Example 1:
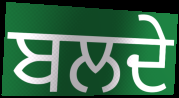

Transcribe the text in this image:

ਬਲਦੇ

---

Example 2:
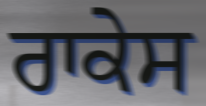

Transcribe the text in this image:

ਰਾਕੇਸ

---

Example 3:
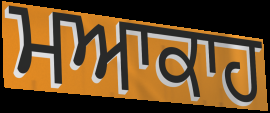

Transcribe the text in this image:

ਮਆਕਾਹ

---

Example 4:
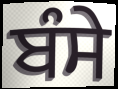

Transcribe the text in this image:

ਬੰਸੇ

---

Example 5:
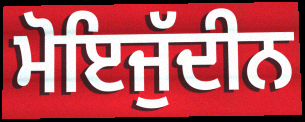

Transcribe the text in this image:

ਮੋਇਜੁੱਦੀਨ